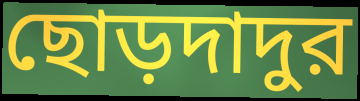
ছোড়দাদুর